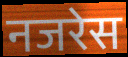
नजरेस